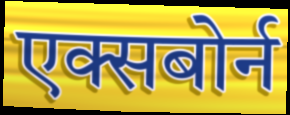
एक्सबोर्न